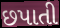
છપાતી